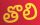
తొలి